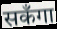
सकँगा